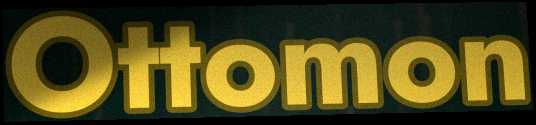
Ottomon